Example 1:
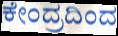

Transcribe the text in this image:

ಕೇಂದ್ರದಿಂದ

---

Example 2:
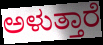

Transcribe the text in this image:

ಅಳುತ್ತಾರೆ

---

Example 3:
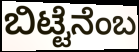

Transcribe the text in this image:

ಬಿಟ್ಟೆನೆಂಬ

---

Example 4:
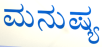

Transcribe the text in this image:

ಮನುಷ್ಯ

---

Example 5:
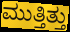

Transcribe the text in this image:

ಮುತ್ತಿತ್ತು